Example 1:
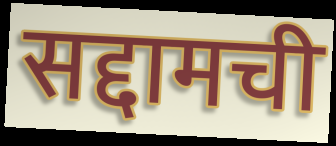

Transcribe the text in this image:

सद्दामची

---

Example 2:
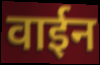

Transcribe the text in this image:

वाईन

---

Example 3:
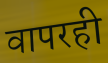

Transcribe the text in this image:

वापरही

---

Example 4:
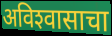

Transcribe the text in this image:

अविश्‍वासाचा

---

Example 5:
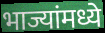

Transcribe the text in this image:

भाज्यांमध्ये